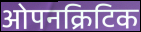
ओपनक्रिटिक